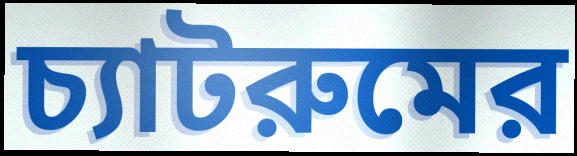
চ্যাটরুমের